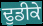
ਢੁਡੀਕੇ